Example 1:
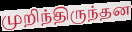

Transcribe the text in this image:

முறிந்திருந்தன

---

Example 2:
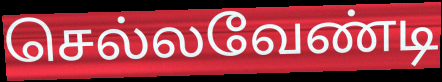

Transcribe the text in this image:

செல்லவேண்டி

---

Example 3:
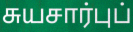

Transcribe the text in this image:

சுயசார்புப்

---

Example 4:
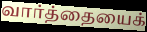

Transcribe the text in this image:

வார்த்தையைக்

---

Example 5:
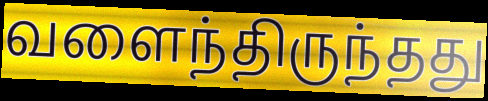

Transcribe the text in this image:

வளைந்திருந்தது